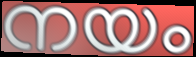
നയം